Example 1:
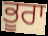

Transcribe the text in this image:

ਭੂਰਾ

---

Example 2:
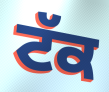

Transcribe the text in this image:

ਟੱਕ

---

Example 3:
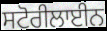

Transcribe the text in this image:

ਸਟੋਰੀਲਾਈਨ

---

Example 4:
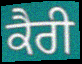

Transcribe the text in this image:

ਕੈਰੀ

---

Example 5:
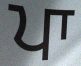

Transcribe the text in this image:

ਪਾ